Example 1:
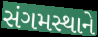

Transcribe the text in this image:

સંગમસ્થાને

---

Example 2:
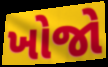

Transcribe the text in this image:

ખોજો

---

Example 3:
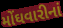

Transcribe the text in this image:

મોંઘવારીનાં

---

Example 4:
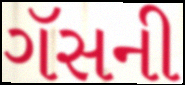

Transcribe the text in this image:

ગૅસની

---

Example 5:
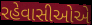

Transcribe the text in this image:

રહેવાસીઓએ